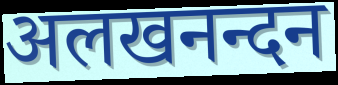
अलखनन्दन